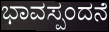
ಭಾವಸ್ಪಂದನೆ